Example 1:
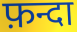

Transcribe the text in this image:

फ़न्दा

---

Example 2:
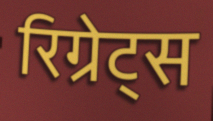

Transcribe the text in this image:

रिग्रेट्स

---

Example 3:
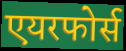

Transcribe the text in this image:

एयरफोर्स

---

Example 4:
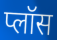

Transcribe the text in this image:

प्लॉस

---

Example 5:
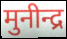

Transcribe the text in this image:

मुनीन्द्र